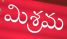
మిశ్రమ